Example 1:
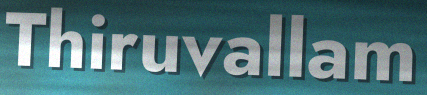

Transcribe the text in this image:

Thiruvallam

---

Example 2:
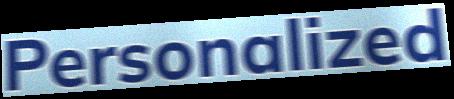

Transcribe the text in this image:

Personalized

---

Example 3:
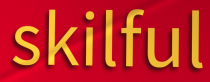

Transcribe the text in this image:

skilful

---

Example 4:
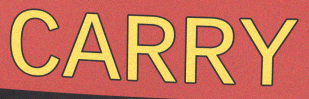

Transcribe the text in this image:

CARRY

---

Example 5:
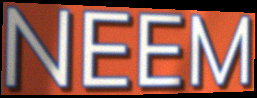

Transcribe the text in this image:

NEEM